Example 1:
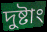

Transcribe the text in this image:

দুষ্টাং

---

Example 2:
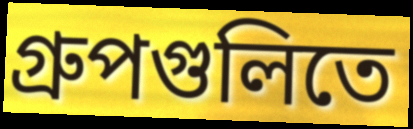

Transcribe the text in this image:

গ্রুপগুলিতে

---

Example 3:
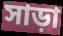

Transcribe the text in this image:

সাড়া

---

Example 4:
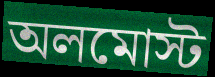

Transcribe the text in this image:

অলমোস্ট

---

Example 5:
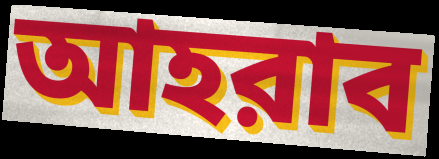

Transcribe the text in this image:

আহরাব